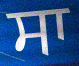
ਸਾ